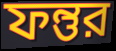
ফন্তুর